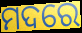
ମଦରେ